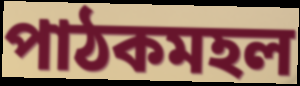
পাঠকমহল